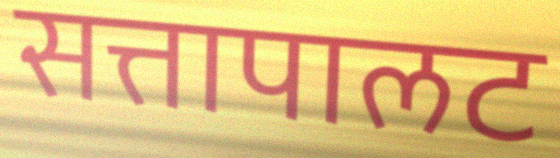
सत्तापालट